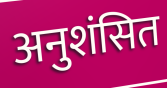
अनुशंसित